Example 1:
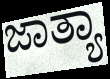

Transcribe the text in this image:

ಜಾತ್ಯಾ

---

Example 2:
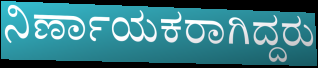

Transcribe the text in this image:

ನಿರ್ಣಾಯಕರಾಗಿದ್ದರು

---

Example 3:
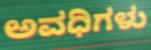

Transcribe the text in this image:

ಅವಧಿಗಳು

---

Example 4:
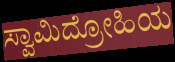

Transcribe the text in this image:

ಸ್ವಾಮಿದ್ರೋಹಿಯ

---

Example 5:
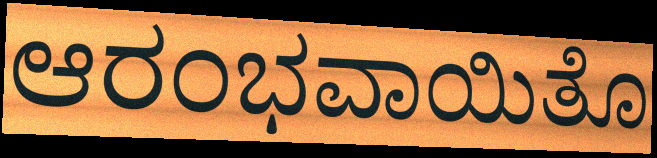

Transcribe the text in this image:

ಆರಂಭವಾಯಿತೊ